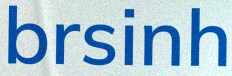
brsinh